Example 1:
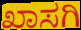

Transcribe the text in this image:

ಖಾಸಗಿ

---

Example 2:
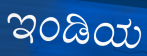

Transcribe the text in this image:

ಇಂಡಿಯ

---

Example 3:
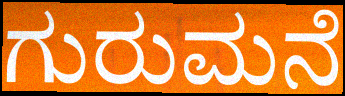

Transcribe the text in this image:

ಗುರುಮನೆ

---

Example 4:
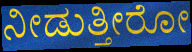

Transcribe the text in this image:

ನೀಡುತ್ತೀರೋ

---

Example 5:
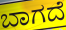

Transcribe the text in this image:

ಬಾಗದೆ